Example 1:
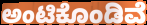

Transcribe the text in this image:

ಅಂಟಿಕೊಂಡಿವೆ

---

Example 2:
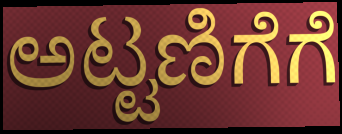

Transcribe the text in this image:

ಅಟ್ಟಣಿಗೆಗೆ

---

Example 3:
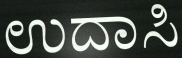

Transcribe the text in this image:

ಉದಾಸಿ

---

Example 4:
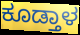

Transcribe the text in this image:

ಕೂಡ್ತಾಳ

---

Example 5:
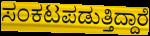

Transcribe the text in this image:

ಸಂಕಟಪಡುತ್ತಿದ್ದಾರೆ